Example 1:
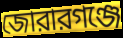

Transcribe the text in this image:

জোরারগঞ্জে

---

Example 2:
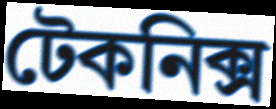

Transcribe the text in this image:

টেকনিক্স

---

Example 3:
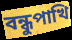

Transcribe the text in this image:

বন্ধুপাখি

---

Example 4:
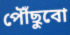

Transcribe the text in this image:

পৌঁছুবো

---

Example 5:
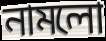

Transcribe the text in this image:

নামলো